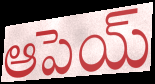
ఆపెయ్